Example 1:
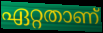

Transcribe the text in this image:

ഏറ്റതാണ്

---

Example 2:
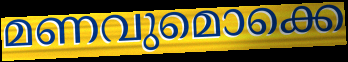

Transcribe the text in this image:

മണവുമൊക്കെ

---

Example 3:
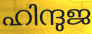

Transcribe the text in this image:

ഹിന്ദുജ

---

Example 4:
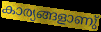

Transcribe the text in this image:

കാര്യങ്ങളാണു്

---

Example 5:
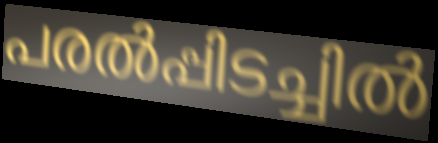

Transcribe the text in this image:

പരൽപ്പിടച്ചിൽ